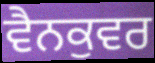
ਵੈਨਕੁਵਰ